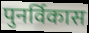
पुनर्विकास